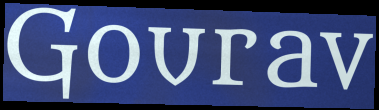
Gourav